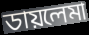
ডায়লেমা